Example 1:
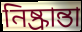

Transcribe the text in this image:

নিষ্ক্রান্তা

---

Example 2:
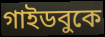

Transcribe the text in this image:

গাইডবুকে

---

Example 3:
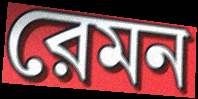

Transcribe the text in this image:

রেমন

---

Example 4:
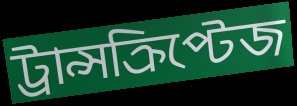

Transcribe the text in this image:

ট্রান্সক্রিপ্টেজ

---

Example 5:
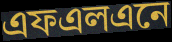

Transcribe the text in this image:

এফএলএনে